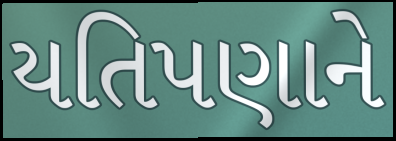
યતિપણાને